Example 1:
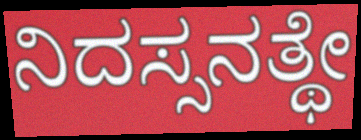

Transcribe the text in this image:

ನಿದಸ್ಸನತ್ಥೇ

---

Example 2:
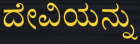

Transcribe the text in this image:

ದೇವಿಯನ್ನು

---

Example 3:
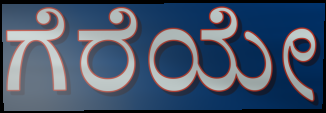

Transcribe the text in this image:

ಗೆರೆಯೇ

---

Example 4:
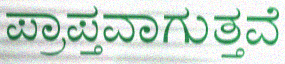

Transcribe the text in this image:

ಪ್ರಾಪ್ತವಾಗುತ್ತವೆ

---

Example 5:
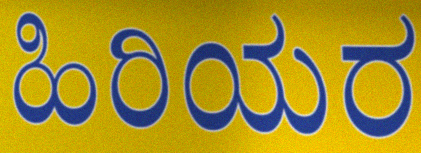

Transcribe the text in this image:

ಹಿರಿಯರ